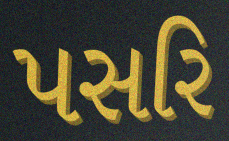
પસરિ